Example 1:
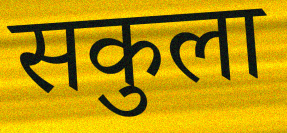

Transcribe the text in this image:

सकुला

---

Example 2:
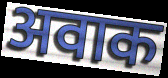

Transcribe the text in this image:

अवाक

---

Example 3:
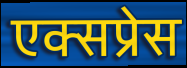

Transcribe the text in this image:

एक्सप्रेस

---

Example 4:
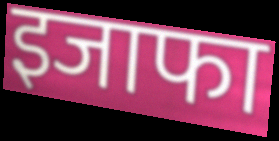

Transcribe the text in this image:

इजाफा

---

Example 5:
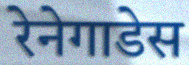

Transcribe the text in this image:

रेनेगाडेस